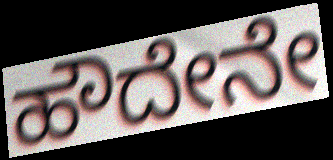
ಹೌದೇನೇ